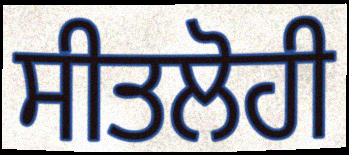
ਸੀਤਲੋਹੀ